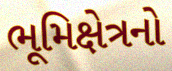
ભૂમિક્ષેત્રનો